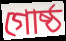
গোষ্ঠ